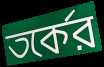
তর্কের